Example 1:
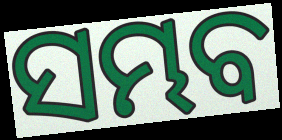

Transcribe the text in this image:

ସମ୍ଭବ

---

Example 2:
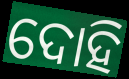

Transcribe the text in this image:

ଦୋହି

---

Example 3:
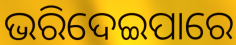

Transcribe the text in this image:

ଭରିଦେଇପାରେ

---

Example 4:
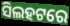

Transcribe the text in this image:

ସିଲହଟରେ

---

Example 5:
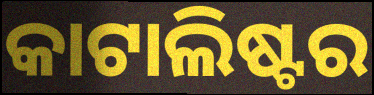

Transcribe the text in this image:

କାଟାଲିଷ୍ଟର